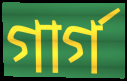
গাৰ্গ